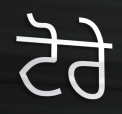
ਟੋਰੇ